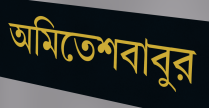
অমিতেশবাবুর